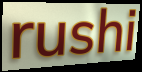
rushi